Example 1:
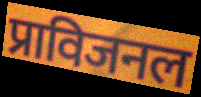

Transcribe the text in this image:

प्राविजनल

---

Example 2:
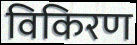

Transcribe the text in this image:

विकिरण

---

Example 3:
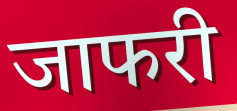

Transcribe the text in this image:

जाफरी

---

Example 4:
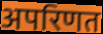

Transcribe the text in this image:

अपरिणत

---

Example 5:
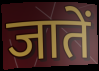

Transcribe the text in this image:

जातें